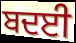
ਬਦਈ